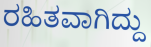
ರಹಿತವಾಗಿದ್ದು